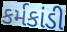
કર્મકાંડી